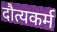
दौत्यकर्म